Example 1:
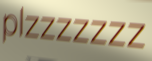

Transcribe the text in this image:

plzzzzzzz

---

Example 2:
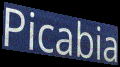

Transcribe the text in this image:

Picabia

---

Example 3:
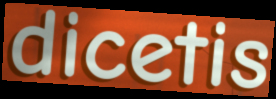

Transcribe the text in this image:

dicetis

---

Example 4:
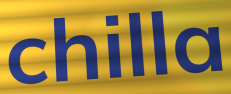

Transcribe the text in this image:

chilla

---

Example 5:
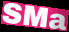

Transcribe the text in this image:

SMa